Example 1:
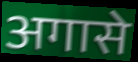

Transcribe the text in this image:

अगासे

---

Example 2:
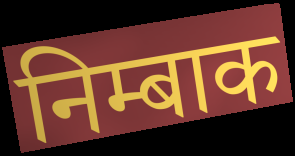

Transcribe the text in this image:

निम्बाक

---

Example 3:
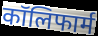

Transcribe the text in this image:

कॉलिफार्म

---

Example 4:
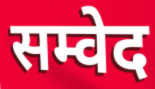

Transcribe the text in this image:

सम्वेद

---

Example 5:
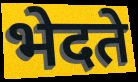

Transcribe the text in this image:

भेदते